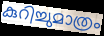
കുറിച്ചുമാത്രം